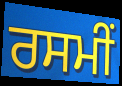
ਰਸਮੀਂ